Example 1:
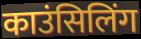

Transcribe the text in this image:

काउंसिलिंग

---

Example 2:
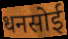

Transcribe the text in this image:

धनसोई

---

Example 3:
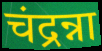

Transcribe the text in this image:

चंद्रन्ना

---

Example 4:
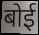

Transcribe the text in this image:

बोई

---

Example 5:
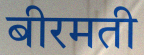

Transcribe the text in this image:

बीरमती